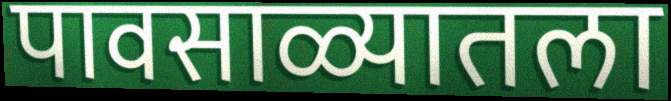
पावसाळ्यातला